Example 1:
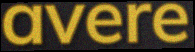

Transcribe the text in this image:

avere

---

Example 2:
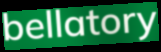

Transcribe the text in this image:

bellatory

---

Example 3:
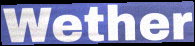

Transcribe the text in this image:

Wether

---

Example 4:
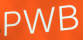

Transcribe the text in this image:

PWB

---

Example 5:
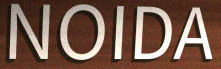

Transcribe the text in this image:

NOIDA